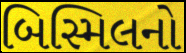
બિસ્મિલનો